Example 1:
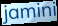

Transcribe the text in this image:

jamini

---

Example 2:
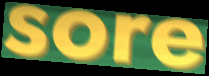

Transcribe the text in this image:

sore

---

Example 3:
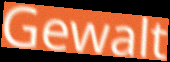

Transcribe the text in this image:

Gewalt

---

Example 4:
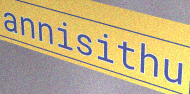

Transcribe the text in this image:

annisithu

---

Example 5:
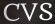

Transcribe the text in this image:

CVS